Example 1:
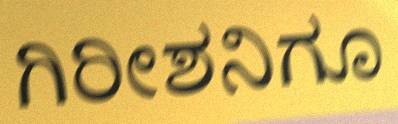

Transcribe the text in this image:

ಗಿರೀಶನಿಗೂ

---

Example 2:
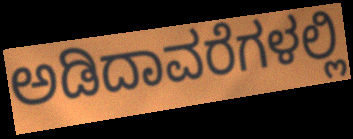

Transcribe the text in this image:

ಅಡಿದಾವರೆಗಳಲ್ಲಿ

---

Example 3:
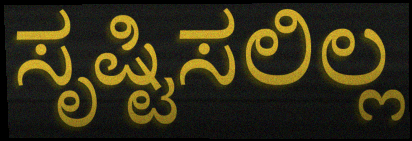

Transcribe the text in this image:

ಸೃಷ್ಟಿಸಲಿಲ್ಲ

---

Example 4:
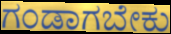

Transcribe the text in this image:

ಗಂಡಾಗಬೇಕು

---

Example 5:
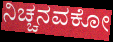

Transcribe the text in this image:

ನಿಚ್ಚನವಕೋ